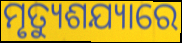
ମୃତ୍ୟୁଶଯ୍ୟାରେ